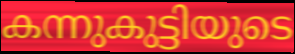
കന്നുകുട്ടിയുടെ